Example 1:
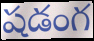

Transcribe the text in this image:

షడంగ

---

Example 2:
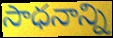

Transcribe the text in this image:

సాధనాన్ని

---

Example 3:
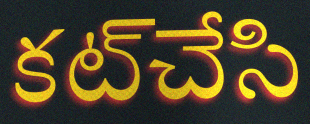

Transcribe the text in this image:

కట్‌చేసి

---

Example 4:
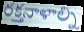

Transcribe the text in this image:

రక్తనాళాల్ని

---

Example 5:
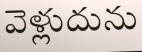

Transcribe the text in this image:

వెళ్లుదును